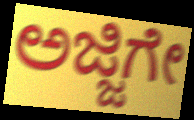
ಅಜ್ಜಿಗೇ